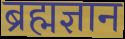
ब्रह्मज्ञान